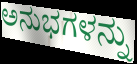
ಅನುಭಗಳನ್ನು